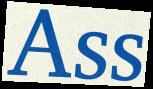
Ass